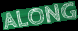
ALONG